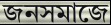
জনসমাজে